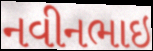
નવીનભાઇ